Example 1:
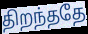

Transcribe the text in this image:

திறந்ததே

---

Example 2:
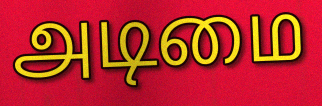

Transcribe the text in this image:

அடிமை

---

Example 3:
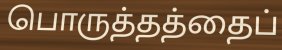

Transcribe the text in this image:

பொருத்தத்தைப்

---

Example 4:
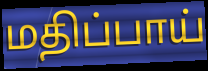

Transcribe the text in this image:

மதிப்பாய்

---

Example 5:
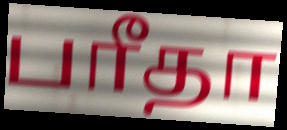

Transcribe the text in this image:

பரீதா